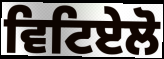
ਵਿਟਿਏਲੋ